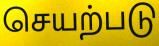
செயற்படு